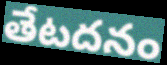
తేటదనం